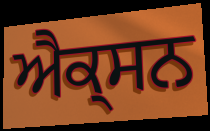
ਐਕ੍ਸਨ